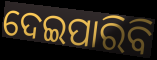
ଦେଇପାରିବି